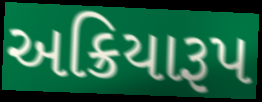
અક્રિયારૂપ